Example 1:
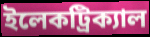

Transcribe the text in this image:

ইলেকট্রিক্যাল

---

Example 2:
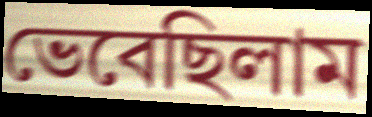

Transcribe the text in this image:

ভেবেছিলাম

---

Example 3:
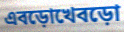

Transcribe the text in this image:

এবড়োখেবড়ো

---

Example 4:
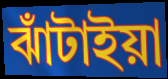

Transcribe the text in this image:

ঝাঁটাইয়া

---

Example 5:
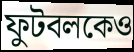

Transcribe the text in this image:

ফুটবলকেও